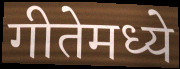
गीतेमध्ये